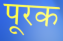
पूरक